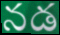
నడ